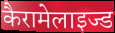
कैरामेलाइज्ड